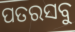
ପତରସବୁ